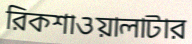
রিকশাওয়ালাটার